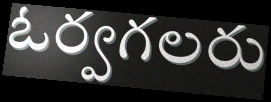
ఓర్వగలరు